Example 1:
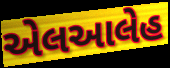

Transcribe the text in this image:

એલઆલેહ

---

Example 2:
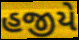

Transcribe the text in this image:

હજીયે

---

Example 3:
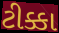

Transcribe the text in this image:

ટીક્કા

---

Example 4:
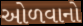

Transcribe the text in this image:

ઓળવાનો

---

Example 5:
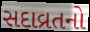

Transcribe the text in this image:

સદાવ્રતનો